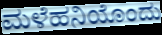
ಮಳೆಹನಿಯೊಂದು